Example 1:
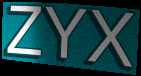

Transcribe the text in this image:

ZYX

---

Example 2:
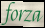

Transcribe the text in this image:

forza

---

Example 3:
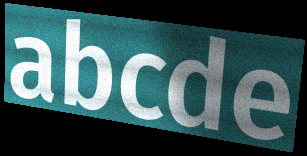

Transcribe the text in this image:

abcde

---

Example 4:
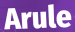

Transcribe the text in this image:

Arule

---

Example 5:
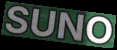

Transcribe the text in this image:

SUNO